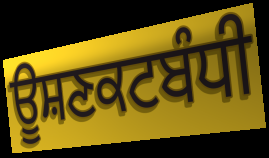
ਊਸ਼ਣਕਟਬੰਧੀ